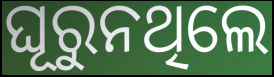
ଘୂରୁନଥିଲେ